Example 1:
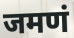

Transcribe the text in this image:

जमणं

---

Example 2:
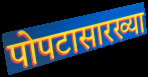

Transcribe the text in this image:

पोपटासारख्या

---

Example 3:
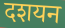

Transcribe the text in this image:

दशयन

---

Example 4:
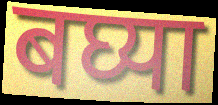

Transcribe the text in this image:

बघ्या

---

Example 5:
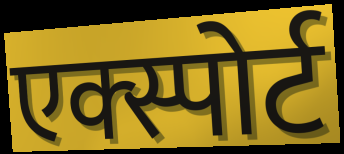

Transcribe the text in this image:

एक्‍स्पोर्ट